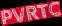
PVRTC